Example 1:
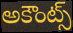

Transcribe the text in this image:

అకౌంట్స్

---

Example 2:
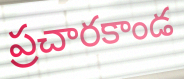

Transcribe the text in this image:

ప్రచారకాండ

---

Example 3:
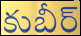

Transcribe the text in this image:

కుబీర్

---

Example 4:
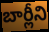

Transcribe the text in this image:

బార్లీని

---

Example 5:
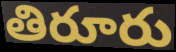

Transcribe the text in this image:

తిరూరు